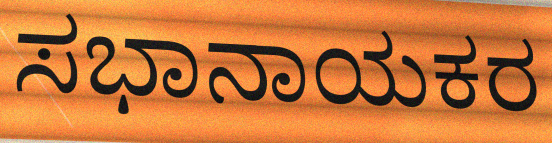
ಸಭಾನಾಯಕರ